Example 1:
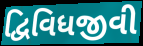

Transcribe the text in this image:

દ્વિવિધજીવી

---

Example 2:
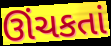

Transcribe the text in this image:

ઊંચકતાં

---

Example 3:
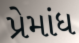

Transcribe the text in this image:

પ્રેમાંધ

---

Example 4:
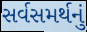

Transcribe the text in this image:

સર્વસમર્થનું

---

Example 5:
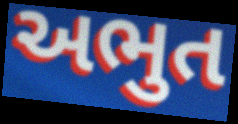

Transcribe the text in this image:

અભુત